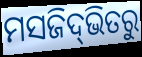
ମସଜିଦ୍‌ଭିତରୁ